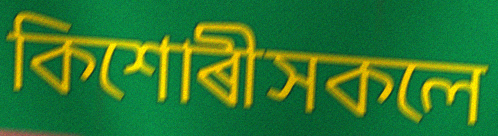
কিশোৰীসকলে